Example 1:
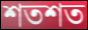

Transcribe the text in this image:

শতশত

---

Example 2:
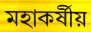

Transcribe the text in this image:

মহাকর্ষীয়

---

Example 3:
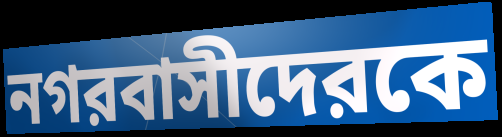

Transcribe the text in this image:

নগরবাসীদেরকে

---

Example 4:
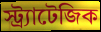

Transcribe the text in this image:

স্ট্র্যাটেজিক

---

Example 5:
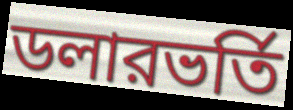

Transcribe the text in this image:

ডলারভর্তি